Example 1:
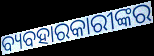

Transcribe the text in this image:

ବ୍ୟବହାରକାରୀଙ୍କର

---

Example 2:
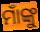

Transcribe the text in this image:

ମାଁଙ୍କୁ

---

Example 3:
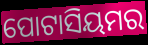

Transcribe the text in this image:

ପୋଟାସିୟମର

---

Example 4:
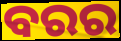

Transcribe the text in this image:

ବରର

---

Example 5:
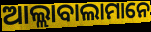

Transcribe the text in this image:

ଆଲ୍ଲାବାଲାମାନେ